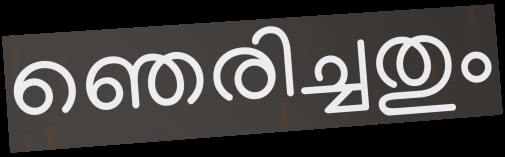
ഞെരിച്ചതും